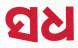
ସଧ